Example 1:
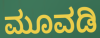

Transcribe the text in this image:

ಮೂವಡಿ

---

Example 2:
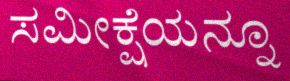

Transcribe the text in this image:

ಸಮೀಕ್ಷೆಯನ್ನೂ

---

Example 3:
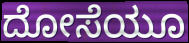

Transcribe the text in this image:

ದೋಸೆಯೂ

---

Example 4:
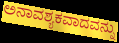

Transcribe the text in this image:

ಅನಾವಶ್ಯಕವಾದವನ್ನು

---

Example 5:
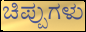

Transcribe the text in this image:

ಚಿಪ್ಪುಗಳು